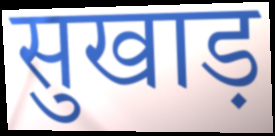
सुखाड़